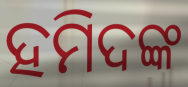
ହମିଦଙ୍କ